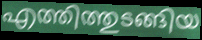
എത്തിത്തുടങ്ങിയ